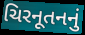
ચિરનૂતનનું